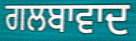
ਗਲਬਾਵਾਦ